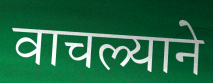
वाचल्याने